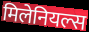
मिलेनियल्स